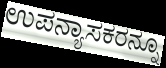
ಉಪನ್ಯಾಸಕರನ್ನೂ